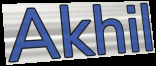
Akhil